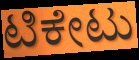
ಟಿಕೇಟು